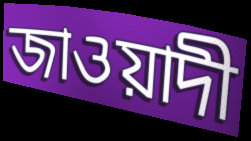
জাওয়াদী